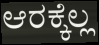
ಆರಕ್ಕೆಲ್ಲ